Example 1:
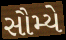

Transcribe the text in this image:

સૌમ્યે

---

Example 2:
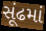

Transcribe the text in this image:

સૂંઢમાં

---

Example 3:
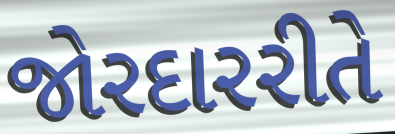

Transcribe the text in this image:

જોરદારરીતે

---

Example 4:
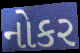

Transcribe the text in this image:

નોકર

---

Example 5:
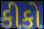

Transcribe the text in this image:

કીકો